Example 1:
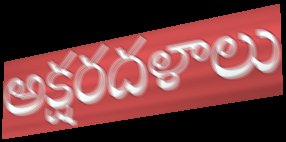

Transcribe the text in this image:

అక్షరదళాలు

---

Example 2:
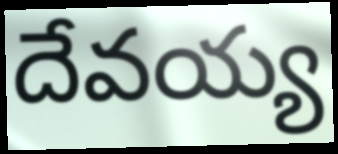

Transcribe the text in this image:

దేవయ్య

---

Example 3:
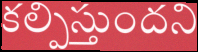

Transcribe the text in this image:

కల్పిస్తుందని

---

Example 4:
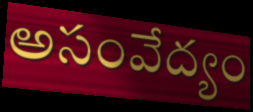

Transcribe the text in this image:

అసంవేద్యం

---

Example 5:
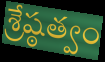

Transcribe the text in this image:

శ్రేష్ఠత్వం